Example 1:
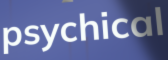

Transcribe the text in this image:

psychical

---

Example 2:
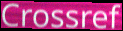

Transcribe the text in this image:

Crossref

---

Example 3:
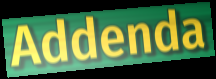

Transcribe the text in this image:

Addenda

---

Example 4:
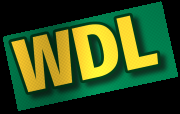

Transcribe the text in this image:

WDL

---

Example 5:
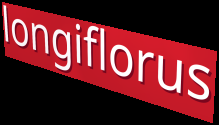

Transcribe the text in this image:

longiflorus